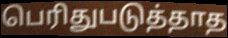
பெரிதுபடுத்தாத